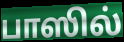
பாஸில்